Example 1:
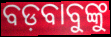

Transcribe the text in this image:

ବଡ଼ବାବୁଙ୍କୁ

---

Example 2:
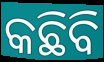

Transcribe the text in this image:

କଛିବି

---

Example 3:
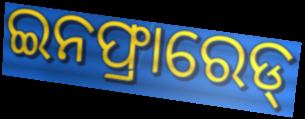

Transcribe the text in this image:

ଇନଫ୍ରାରେଡ୍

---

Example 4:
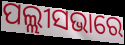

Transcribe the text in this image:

ପଲ୍ଲୀସଭାରେ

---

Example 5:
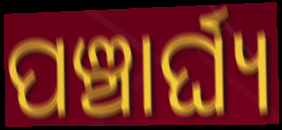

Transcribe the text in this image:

ପଞ୍ଚାର୍ଘ୍ୟ